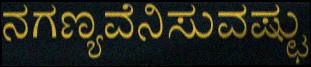
ನಗಣ್ಯವೆನಿಸುವಷ್ಟು